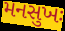
મનસુખઃ